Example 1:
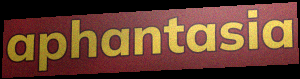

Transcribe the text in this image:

aphantasia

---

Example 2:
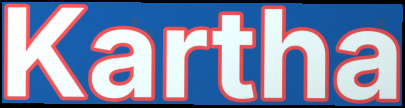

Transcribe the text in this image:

Kartha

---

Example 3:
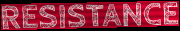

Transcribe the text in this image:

RESISTANCE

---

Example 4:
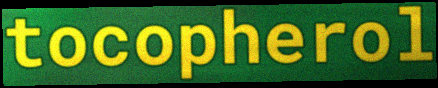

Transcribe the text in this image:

tocopherol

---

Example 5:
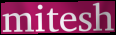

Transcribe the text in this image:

mitesh